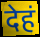
देहं